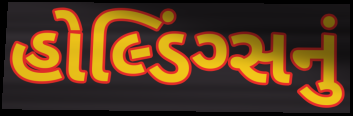
હોલ્ડિંગ્સનું